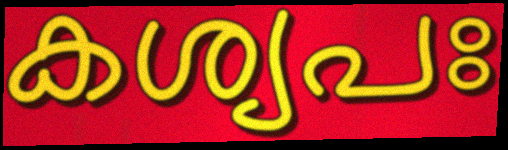
കശ്യപഃ